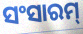
ସଂସାରମ୍